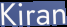
Kiran